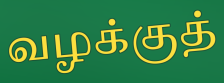
வழக்குத்